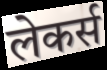
लेकर्स